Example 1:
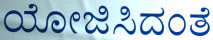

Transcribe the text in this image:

ಯೋಜಿಸಿದಂತೆ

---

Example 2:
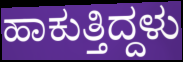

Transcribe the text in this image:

ಹಾಕುತ್ತಿದ್ದಳು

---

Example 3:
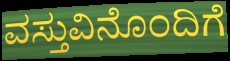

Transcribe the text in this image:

ವಸ್ತುವಿನೊಂದಿಗೆ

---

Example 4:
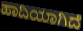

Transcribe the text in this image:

ಹಾದಿಯಾಗಿದೆ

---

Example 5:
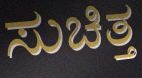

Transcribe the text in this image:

ಸುಚಿತ್ತ